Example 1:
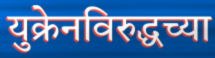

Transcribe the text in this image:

युक्रेनविरुद्धच्या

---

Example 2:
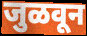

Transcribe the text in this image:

जुळवून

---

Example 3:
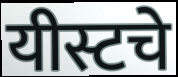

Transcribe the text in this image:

यीस्टचे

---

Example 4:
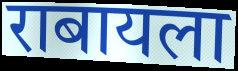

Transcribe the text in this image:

राबायला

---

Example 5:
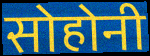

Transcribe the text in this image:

सोहोनी